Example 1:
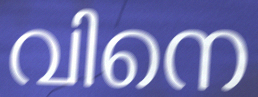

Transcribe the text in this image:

വിനെ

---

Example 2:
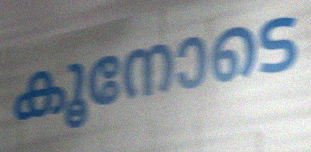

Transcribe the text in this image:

കൂനോടെ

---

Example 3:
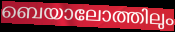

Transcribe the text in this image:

ബെയാലോത്തിലും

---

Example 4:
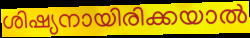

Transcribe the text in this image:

ശിഷ്യനായിരിക്കയാൽ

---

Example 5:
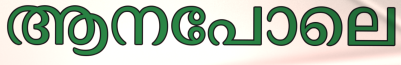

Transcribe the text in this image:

ആനപോലെ